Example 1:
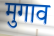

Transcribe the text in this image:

मुगाव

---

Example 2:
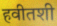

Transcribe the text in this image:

हवीतशी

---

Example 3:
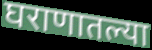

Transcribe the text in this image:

घराणातल्या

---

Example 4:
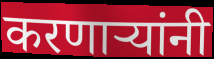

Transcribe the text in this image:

करणाऱ्यांनी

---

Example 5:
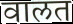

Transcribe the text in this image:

वालत